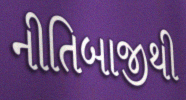
નીતિબાજીથી